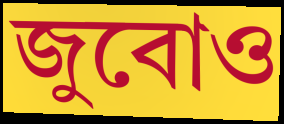
জুবোও